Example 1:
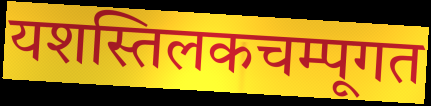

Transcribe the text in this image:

यशस्तिलकचम्पूगत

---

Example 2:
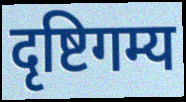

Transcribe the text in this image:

दृष्टिगम्य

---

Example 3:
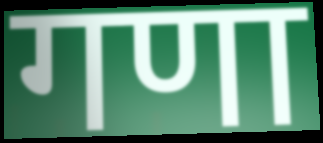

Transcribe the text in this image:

गणा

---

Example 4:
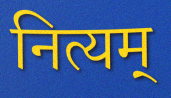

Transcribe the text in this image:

नित्यम्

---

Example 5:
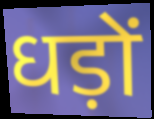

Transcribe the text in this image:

धड़ों